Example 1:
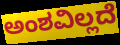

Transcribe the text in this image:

ಅಂಶವಿಲ್ಲದೆ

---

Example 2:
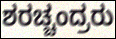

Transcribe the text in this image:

ಶರಚ್ಚಂದ್ರರು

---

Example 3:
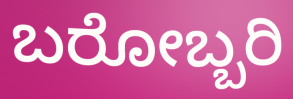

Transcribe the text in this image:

ಬರೋಬ್ಬರಿ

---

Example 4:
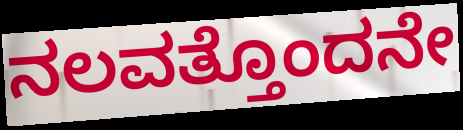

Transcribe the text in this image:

ನಲವತ್ತೊಂದನೇ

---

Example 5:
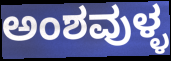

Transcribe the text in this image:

ಅಂಶವುಳ್ಳ